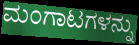
ಮಂಗಾಟಗಳನ್ನು